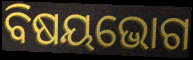
ବିଷୟଭୋଗ